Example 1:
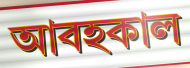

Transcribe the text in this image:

আবহকাল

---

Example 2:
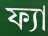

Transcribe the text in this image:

ফ্যা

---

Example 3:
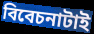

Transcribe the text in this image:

বিবেচনাটাই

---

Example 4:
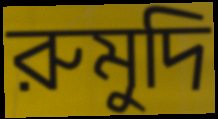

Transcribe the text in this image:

রুমুদি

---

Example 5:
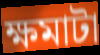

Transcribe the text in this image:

ক্ষমাটা